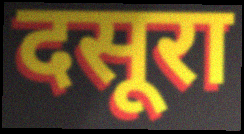
दसूरा